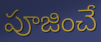
పూజించే